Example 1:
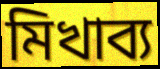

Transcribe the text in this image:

মিখাব্য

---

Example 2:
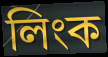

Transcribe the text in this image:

লিংক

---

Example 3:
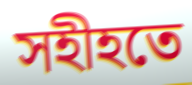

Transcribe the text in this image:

সহীহতে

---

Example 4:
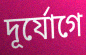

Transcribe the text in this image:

দূর্যোগে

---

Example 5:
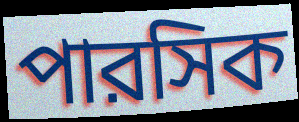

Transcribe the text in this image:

পারসিক